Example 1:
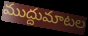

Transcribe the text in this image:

ముద్దుమాటల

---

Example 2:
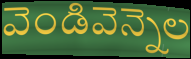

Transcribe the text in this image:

వెండివెన్నెల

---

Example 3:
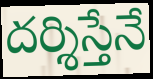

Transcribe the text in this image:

దర్శిస్తేనే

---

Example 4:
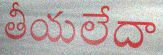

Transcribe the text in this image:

తీయలేదా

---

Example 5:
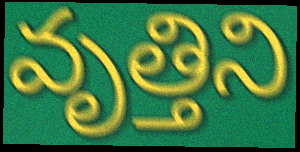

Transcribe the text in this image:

వృత్తిని